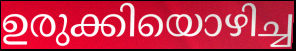
ഉരുക്കിയൊഴിച്ച